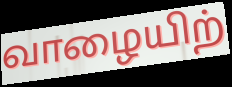
வாழையிற்